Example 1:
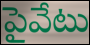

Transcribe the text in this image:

పైవేటు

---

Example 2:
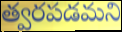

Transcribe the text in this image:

త్వరపడమని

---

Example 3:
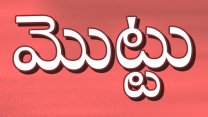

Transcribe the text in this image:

మొట్టు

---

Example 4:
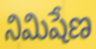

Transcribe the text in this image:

నిమిషేణ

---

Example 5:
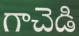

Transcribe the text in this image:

గాచెడి